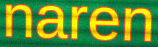
naren